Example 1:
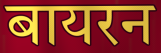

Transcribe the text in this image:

बायरन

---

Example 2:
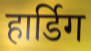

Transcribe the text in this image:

हार्डिग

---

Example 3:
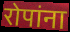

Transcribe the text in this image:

रोपांना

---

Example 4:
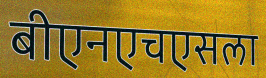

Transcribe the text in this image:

बीएनएचएसला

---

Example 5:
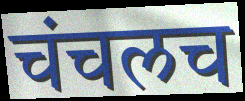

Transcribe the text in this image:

चंचलच